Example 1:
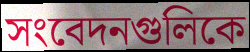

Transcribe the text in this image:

সংবেদনগুলিকে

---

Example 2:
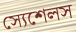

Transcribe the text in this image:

স্যেশেলস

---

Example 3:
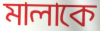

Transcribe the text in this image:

মালাকে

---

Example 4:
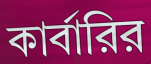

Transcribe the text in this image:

কার্বারির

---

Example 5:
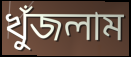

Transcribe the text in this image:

খুঁজলাম